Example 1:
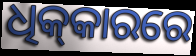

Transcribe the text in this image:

ଧିକ୍‌କାରରେ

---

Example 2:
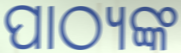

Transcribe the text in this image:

ପାଠ୍ୟଙ୍କ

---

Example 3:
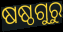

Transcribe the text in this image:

ଷଷ୍ଠଗୁରୁ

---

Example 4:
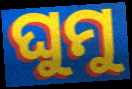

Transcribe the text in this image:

ଘୁମୁ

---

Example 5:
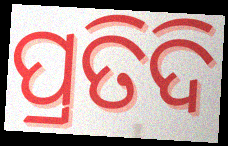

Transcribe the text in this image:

ପ୍ରତିଦି